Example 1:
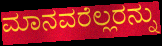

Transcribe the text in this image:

ಮಾನವರೆಲ್ಲರನ್ನು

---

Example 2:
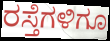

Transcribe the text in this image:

ರಸ್ತೆಗಳಿಗೂ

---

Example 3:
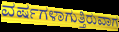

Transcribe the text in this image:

ವರ್ಷಗಳಾಗುತ್ತಿರುವಾಗ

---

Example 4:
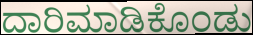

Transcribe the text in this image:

ದಾರಿಮಾಡಿಕೊಂಡು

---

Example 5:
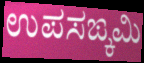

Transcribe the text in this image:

ಉಪಸಙ್ಕಮಿ